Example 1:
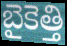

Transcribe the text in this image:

బైకెత్తి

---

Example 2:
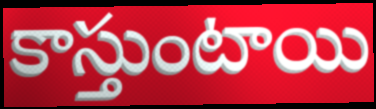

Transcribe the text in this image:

కాస్తుంటాయి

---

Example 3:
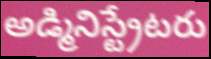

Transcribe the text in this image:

అడ్మినిస్ట్రేటరు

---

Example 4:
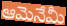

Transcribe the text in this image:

ఆమెనేమీ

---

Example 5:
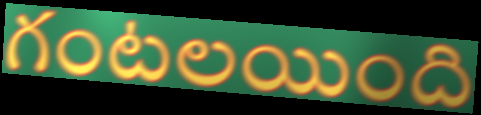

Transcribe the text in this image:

గంటలయింది